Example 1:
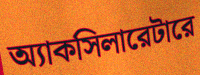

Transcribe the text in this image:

অ্যাকসিলারেটারে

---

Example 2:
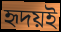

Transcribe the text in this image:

হৃদয়ই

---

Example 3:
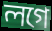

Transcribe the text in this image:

লগে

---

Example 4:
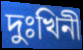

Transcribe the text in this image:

দুঃখিনী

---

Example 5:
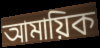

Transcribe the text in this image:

আমায়িক